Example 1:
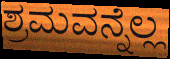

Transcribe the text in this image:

ಶ್ರಮವನ್ನೆಲ್ಲ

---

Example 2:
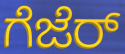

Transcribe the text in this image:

ಗೆಜೆರ್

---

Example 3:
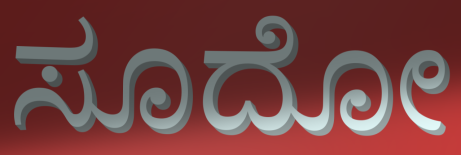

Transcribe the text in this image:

ಸೂದೋ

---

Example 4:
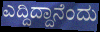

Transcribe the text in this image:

ಎದ್ದಿದ್ದಾನೆಂದು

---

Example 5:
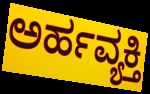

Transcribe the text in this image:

ಅರ್ಹವ್ಯಕ್ತಿ